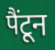
पैंटून